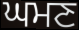
ਘਮਣ